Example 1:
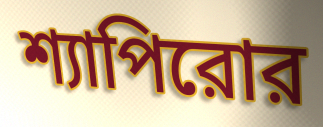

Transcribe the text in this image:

শ্যাপিরোর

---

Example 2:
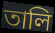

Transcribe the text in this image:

তালি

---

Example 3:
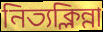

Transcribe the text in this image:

নিত্যক্লিন্না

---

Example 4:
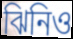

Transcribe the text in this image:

ঝিনিও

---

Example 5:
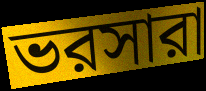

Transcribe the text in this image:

ভরসারা